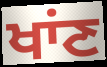
ਖਾਂਣ